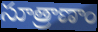
సూత్రాణాం